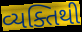
વ્યક્તિથી